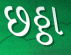
છઠ્ઠા